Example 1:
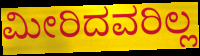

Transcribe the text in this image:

ಮೀರಿದವರಿಲ್ಲ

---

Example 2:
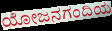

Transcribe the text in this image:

ಯೋಜನಗಂದಿಯ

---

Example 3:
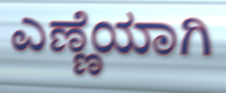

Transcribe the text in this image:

ಎಣ್ಣೆಯಾಗಿ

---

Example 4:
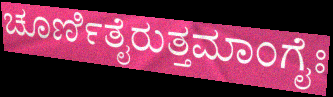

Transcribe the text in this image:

ಚೂರ್ಣಿತೈರುತ್ತಮಾಂಗೈಃ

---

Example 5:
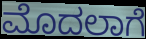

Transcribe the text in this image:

ಮೊದಲಾಗೆ